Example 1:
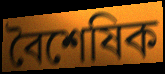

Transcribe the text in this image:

বৈশেষিক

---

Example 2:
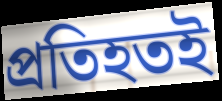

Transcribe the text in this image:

প্রতিহতই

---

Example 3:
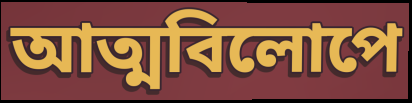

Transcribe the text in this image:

আত্মবিলোপে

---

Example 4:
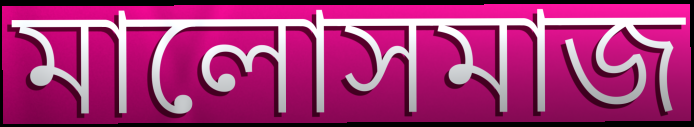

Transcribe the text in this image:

মালোসমাজ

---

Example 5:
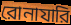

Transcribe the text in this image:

রোনাযারি